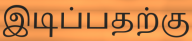
இடிப்பதற்கு